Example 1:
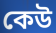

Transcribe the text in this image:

কেউ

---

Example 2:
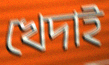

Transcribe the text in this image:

খেদাই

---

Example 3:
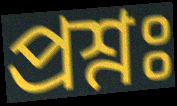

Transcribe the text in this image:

প্রশ্নঃ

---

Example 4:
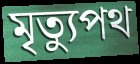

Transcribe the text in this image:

মৃত্যুপথ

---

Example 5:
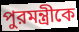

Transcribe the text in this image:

পুরমন্ত্রীকে